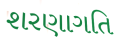
શરણાગતિ